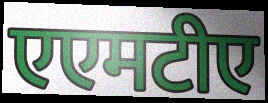
एएमटीए